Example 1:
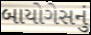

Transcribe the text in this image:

બાયોગેસનું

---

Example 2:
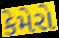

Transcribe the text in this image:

કેમેરો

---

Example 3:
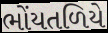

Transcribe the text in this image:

ભોંયતળિયે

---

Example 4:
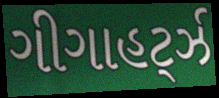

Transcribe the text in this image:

ગીગાહર્ટ્ઝ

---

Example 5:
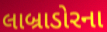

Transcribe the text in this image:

લાબ્રાડોરના